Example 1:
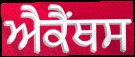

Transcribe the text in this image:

ਐਕੈਂਥਸ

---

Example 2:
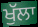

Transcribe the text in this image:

ਖੁੱਲਾ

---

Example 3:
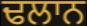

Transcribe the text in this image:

ਢਲਾਨ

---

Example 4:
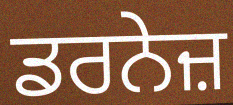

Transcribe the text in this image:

ਡਰਨੇਜ਼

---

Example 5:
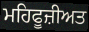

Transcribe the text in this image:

ਮਹਿਫੂਜ਼ੀਅਤ